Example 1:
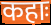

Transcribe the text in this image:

कहाः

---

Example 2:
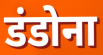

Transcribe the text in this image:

डंडोना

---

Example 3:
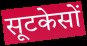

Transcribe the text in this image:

सूटकेसों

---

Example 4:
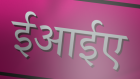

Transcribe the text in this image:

ईआईए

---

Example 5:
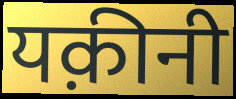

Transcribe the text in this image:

यक़ीनी